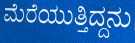
ಮೆರೆಯುತ್ತಿದ್ದನು